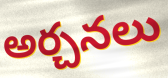
అర్చనలు